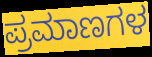
ಪ್ರಮಾಣಗಳ